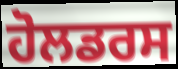
ਹੋਲਡਰਸ